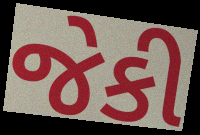
જેકી